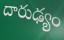
దారుఢ్యం